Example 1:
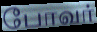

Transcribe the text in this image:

போவர்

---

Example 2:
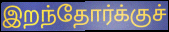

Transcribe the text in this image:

இறந்தோர்க்குச்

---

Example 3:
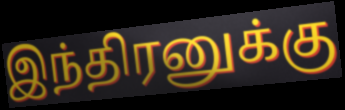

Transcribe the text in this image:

இந்திரனுக்கு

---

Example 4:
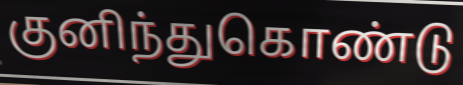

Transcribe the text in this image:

குனிந்துகொண்டு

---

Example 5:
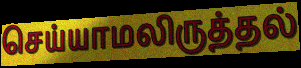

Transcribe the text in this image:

செய்யாமலிருத்தல்